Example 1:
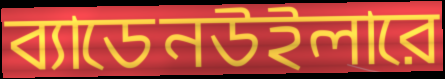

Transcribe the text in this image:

ব্যাডেনউইলারে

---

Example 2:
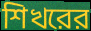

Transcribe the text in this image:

শিখরের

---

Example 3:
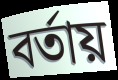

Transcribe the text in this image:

বর্তায়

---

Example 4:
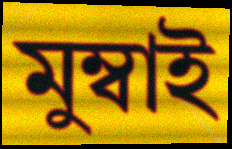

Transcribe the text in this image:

মুম্বাই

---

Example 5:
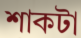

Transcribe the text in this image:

শাকটা